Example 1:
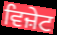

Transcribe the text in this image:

ਵਿਜ਼ੇਟ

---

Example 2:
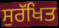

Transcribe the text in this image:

ਸੁਰੱਖਿਤ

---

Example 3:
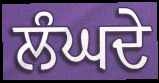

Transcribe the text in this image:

ਲੰਘਦੇ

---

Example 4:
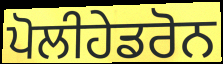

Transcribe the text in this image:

ਪੋਲੀਹੇਡਰੋਨ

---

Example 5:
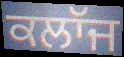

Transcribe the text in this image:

ਕਲਾੱਜ